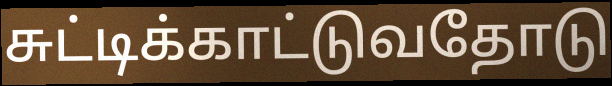
சுட்டிக்காட்டுவதோடு